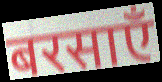
बरसाएँ